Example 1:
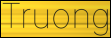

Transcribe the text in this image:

Truong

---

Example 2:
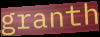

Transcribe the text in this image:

granth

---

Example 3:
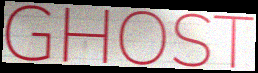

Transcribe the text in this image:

GHOST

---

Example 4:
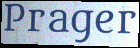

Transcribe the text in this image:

Prager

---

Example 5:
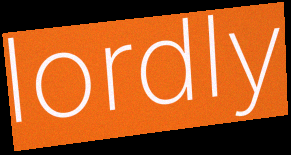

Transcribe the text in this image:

lordly